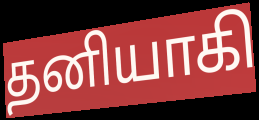
தனியாகி